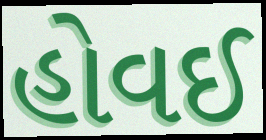
હોવઈ